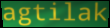
agtilak